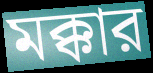
মক্কার